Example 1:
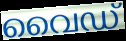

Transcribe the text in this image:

വൈഡ്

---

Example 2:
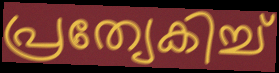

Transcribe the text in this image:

പ്രത്യേകിച്ച്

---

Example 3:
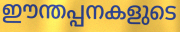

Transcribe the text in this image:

ഈന്തപ്പനകളുടെ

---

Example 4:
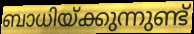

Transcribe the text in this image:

ബാധിയ്ക്കുന്നുണ്ട്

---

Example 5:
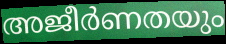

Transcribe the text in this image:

അജീർണതയും